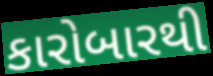
કારોબારથી